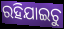
ରହିଯାଇଚୁ